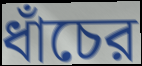
ধাঁচের